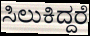
ಸಿಲುಕಿದ್ದರೆ